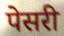
पेसरी